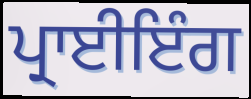
ਪ੍ਰਾਈਇੰਗ